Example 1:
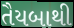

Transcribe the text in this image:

તૈયબાથી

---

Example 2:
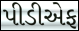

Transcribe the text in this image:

પીડીએફ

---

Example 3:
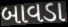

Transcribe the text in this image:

બાવડા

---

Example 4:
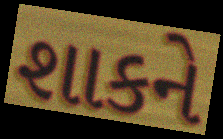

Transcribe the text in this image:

શાકને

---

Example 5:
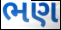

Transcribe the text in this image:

ભણ